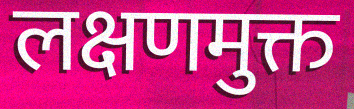
लक्षणमुक्त